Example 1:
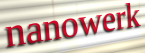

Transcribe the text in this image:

nanowerk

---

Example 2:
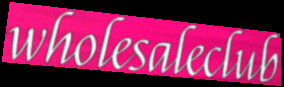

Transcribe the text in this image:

wholesaleclub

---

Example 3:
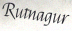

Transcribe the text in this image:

Rutnagur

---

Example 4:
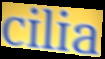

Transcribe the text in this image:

cilia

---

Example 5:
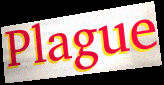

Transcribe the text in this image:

Plague